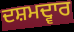
ਦਸ਼ਮਦ੍ਵਾਰ